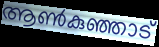
ആൺകുഞ്ഞാട്